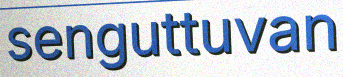
senguttuvan